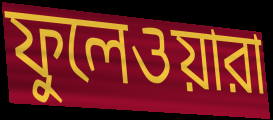
ফুলেওয়ারা